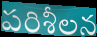
పరిశీలన